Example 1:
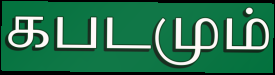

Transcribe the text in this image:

கபடமும்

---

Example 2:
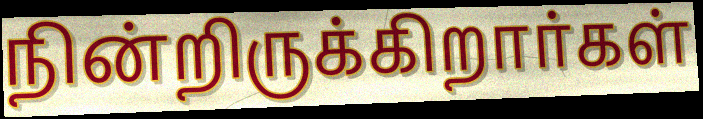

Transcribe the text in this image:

நின்றிருக்கிறார்கள்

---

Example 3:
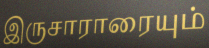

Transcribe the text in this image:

இருசாராரையும்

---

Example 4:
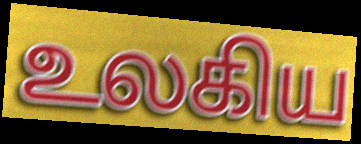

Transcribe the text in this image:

உலகிய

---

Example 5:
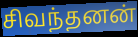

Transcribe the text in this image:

சிவந்தனன்